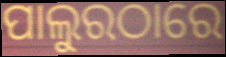
ପାଲୁରଠାରେ